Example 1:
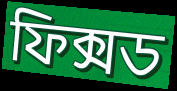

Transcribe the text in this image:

ফিক্সড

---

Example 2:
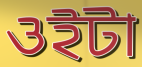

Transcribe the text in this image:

ওইটা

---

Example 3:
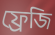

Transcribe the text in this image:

ফ্রেজি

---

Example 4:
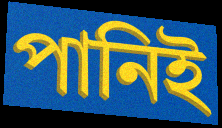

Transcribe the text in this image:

পানিই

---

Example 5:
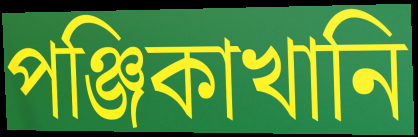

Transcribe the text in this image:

পঞ্জিকাখানি